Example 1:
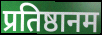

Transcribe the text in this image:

प्रतिष्ठानम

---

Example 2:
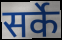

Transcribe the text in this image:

सर्के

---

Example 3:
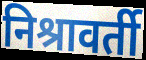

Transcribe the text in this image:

निश्रावर्ती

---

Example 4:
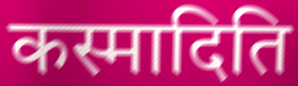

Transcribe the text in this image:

कस्मादिति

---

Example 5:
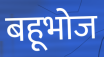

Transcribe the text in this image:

बहूभोज